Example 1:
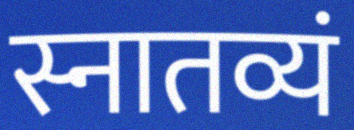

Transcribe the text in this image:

स्नातव्यं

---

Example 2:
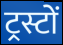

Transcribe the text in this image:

ट्रस्टों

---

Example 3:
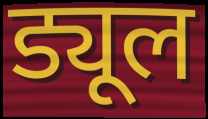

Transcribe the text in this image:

ड्यूल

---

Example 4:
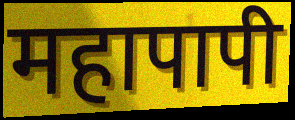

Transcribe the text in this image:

महापापी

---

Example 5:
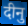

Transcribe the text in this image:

दीनु